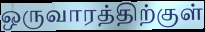
ஒருவாரத்திற்குள்